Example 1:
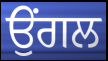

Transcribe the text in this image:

ਉੰਗਲ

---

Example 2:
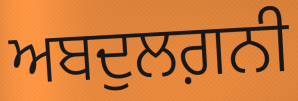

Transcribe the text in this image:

ਅਬਦੁਲਗ਼ਨੀ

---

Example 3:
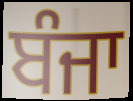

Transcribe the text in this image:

ਬੰਜਾ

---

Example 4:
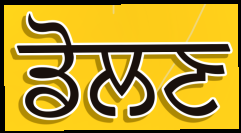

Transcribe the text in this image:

ਡੋਲਣ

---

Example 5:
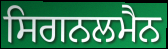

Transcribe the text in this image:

ਸਿਗਨਲਮੈਨ